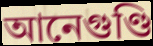
আনেগুণ্ডি